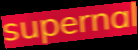
supernal